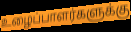
உழைப்பாளர்களுக்கு